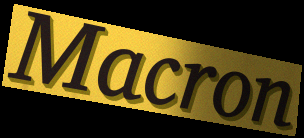
Macron